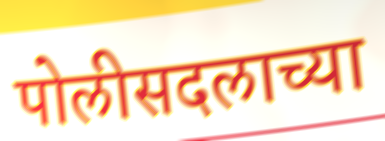
पोलीसदलाच्या